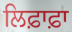
ਲਿਫ਼ਾਫ਼ਾ